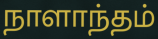
நாளாந்தம்